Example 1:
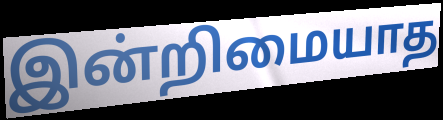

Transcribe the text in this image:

இன்றிமையாத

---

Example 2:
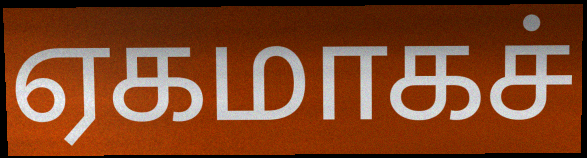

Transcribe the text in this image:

ஏகமாகச்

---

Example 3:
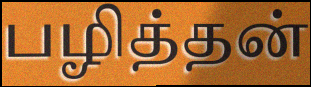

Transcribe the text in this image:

பழித்தன்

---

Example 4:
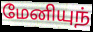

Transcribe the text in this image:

மேனியுந்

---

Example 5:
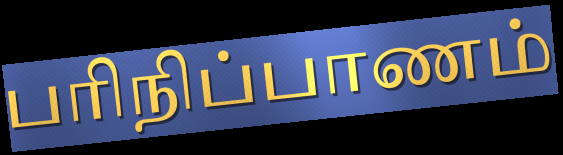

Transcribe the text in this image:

பரிநிப்பாணம்